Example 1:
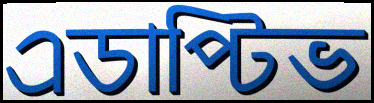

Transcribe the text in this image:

এডাপ্টিভ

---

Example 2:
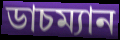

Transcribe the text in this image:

ডাচম্যান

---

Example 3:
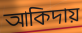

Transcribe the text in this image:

আকিদায়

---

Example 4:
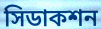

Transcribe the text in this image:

সিডাকশন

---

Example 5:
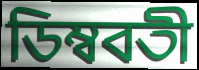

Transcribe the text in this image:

ডিম্ববতী